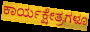
ಕಾರ್ಯಕ್ಷೇತ್ರಗಳೂ